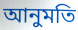
আনুমতি